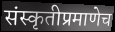
संस्कृतीप्रमाणेच